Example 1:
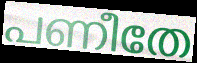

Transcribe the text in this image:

പണീതേ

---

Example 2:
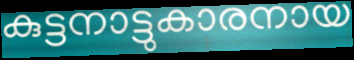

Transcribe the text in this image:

കുട്ടനാട്ടുകാരനായ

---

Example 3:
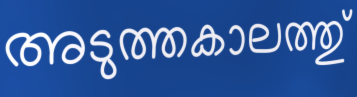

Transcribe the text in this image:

അടുത്തകാലത്തു്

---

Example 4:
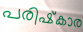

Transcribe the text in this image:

പരിഷ്‌കാര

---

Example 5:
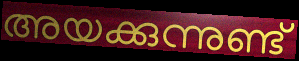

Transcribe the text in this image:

അയക്കുന്നുണ്ട്